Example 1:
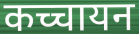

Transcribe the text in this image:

कच्चायन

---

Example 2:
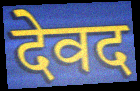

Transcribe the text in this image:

देवद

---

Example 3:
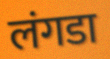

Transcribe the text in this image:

लंगडा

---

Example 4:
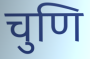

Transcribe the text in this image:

चुणि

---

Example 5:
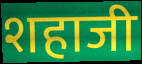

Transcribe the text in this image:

शहाजी